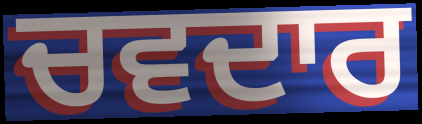
ਚਵਦਾਰ